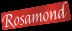
Rosamond